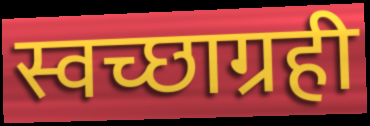
स्वच्छाग्रही